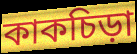
কাকচিড়া